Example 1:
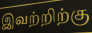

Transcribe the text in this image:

இவற்றிற்கு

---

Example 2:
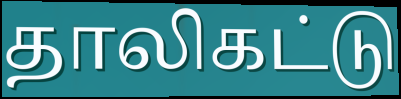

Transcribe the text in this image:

தாலிகட்டு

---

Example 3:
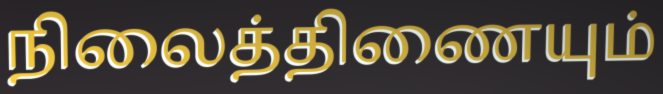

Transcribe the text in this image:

நிலைத்திணையும்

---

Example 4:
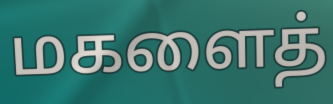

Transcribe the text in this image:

மகளைத்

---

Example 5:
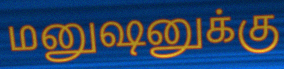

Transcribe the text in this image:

மனுஷனுக்கு